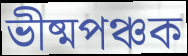
ভীষ্মপঞ্চক